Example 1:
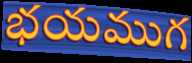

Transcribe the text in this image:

భయముగ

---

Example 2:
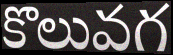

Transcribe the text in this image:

కొలువగ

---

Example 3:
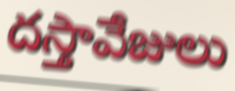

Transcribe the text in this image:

దస్తావేజులు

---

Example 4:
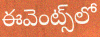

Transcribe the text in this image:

ఈవెంట్స్‌లో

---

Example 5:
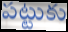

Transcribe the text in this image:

పట్టుకు